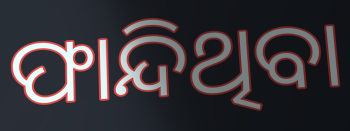
ଫାନ୍ଦିଥିବା